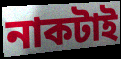
নাকটাই